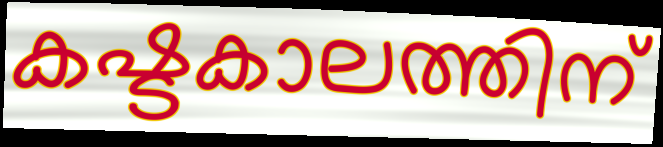
കഷ്ടകാലത്തിന്